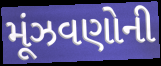
મૂંઝવણોની